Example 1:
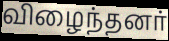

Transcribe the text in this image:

விழைந்தனர்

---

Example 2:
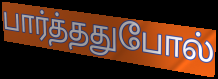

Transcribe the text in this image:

பார்த்ததுபோல்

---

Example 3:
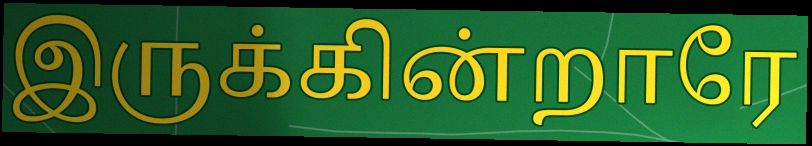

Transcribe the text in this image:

இருக்கின்றாரே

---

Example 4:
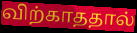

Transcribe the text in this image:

விற்காததால்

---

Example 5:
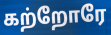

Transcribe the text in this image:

கற்றோரே